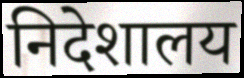
निदेशालय